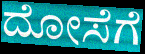
ದೋಸೆಗೆ